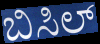
ಬಿಸಿಲ್